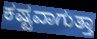
ಕಷ್ಟವಾಗುತ್ತಾ